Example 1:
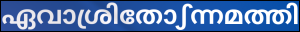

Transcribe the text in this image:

ഏവാശ്രിതോഽന്നമത്തി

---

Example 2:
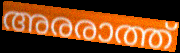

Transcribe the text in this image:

അരരാത്ത്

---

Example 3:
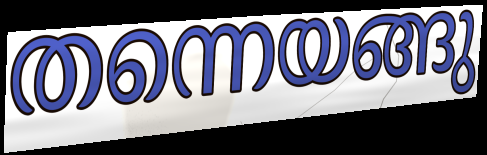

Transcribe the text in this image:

തന്നെയങ്ങു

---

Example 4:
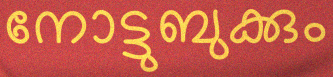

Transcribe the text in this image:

നോട്ടുബുക്കും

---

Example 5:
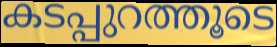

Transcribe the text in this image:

കടപ്പുറത്തൂടെ